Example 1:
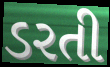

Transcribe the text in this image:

ડરતી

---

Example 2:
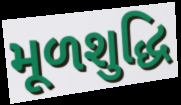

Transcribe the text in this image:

મૂળશુદ્ધિ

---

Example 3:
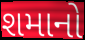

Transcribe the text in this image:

શમાનો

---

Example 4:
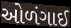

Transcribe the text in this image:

ઓળંગાઈ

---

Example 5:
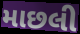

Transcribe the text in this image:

માછલી